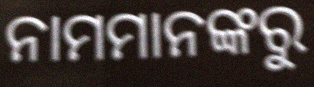
ନାମମାନଙ୍କରୁ